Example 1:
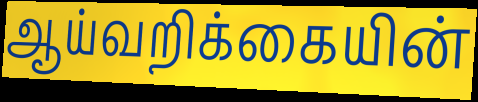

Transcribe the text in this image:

ஆய்வறிக்கையின்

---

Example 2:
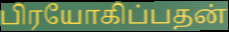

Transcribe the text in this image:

பிரயோகிப்பதன்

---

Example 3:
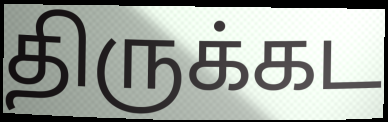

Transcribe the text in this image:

திருக்கட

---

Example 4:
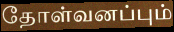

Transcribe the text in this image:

தோள்வனப்பும்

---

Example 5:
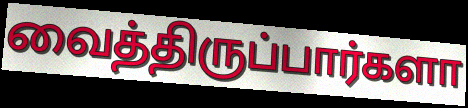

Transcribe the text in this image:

வைத்திருப்பார்களா